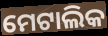
ମେଟାଲିକ